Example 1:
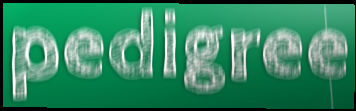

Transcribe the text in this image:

pedigree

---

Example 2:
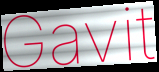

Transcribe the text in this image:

Gavit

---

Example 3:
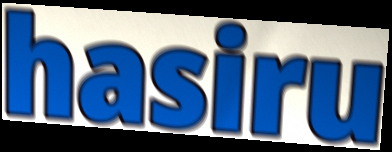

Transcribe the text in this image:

hasiru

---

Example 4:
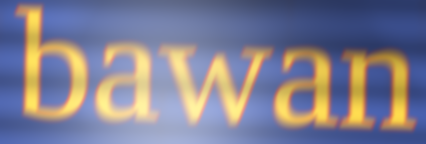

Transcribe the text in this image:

bawan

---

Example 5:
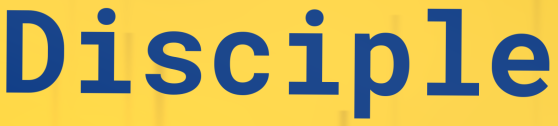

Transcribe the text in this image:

Disciple